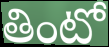
తింటో